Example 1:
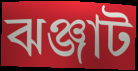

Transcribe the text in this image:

ঝঞ্জাট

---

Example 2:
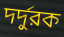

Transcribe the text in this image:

দর্দুরক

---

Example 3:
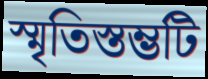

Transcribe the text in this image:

স্মৃতিস্তম্ভটি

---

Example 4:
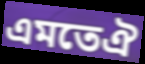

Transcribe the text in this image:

এমতেঐ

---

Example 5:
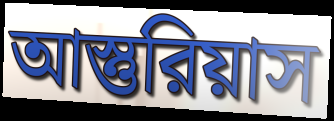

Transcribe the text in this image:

আস্তুরিয়াস